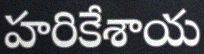
హరికేశాయ